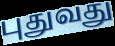
புதுவது